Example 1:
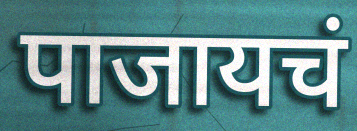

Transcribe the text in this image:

पाजायचं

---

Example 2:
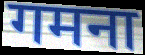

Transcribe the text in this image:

गमना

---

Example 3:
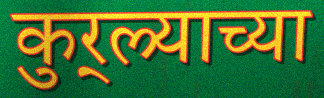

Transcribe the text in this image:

कुर्ल्याच्या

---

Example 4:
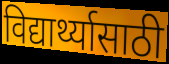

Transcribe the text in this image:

विद्यार्थ्यासाठी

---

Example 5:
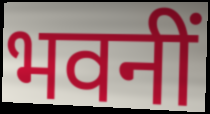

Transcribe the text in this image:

भवनीं